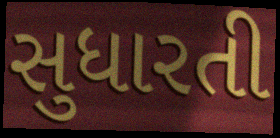
સુધારતી